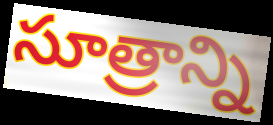
సూత్రాన్ని